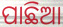
ପାଛିଆ